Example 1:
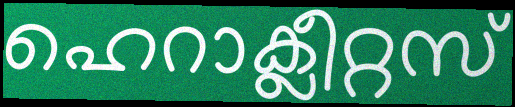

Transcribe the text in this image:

ഹെറാക്ലീറ്റസ്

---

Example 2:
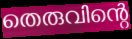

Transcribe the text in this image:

തെരുവിന്റെ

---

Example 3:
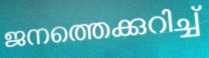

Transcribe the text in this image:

ജനത്തെക്കുറിച്ച്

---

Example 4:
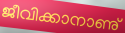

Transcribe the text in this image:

ജീവിക്കാനാണു്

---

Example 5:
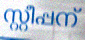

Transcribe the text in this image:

സ്റ്റീപ്പന്